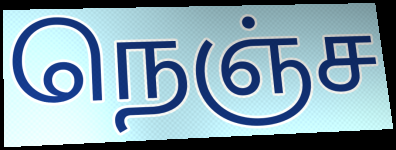
நெஞ்ச